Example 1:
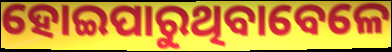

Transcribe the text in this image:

ହୋଇପାରୁଥିବାବେଳେ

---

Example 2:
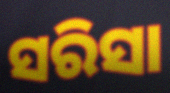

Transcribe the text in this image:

ସରିସା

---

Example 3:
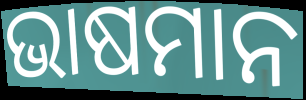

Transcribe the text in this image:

ଭାଷମାନ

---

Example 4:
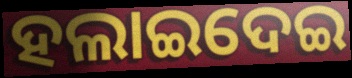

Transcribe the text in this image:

ହଲାଇଦେଇ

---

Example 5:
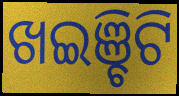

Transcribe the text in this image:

ଖଇଞ୍ଚିଟି